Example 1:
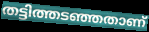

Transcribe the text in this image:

തട്ടിത്തടഞ്ഞതാണ്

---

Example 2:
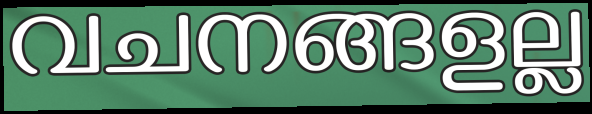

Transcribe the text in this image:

വചനങ്ങളല്ല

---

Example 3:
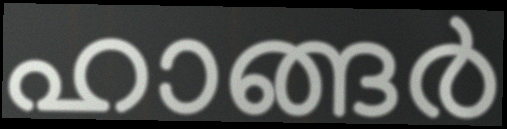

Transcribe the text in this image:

ഹാങ്ങർ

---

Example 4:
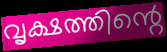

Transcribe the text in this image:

വൃക്ഷത്തിന്റെ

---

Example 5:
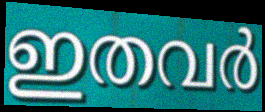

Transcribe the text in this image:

ഇതവർ